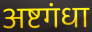
अष्टगंधा